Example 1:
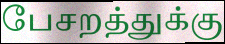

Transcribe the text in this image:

பேசறத்துக்கு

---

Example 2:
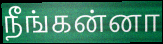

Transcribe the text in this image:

நீங்கன்னா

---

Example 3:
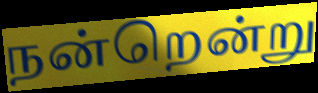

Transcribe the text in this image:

நன்றென்று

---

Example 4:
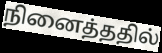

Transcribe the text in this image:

நினைத்ததில்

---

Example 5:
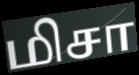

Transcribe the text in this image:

மிசா